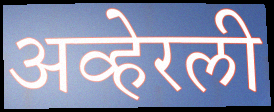
अव्हेरली